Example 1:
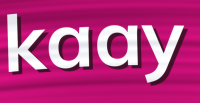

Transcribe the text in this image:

kaay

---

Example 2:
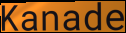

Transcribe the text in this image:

Kanade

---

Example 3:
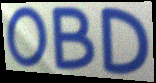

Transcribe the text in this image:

OBD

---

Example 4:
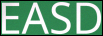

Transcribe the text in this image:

EASD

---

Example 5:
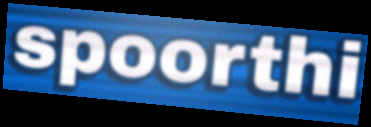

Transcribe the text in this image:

spoorthi